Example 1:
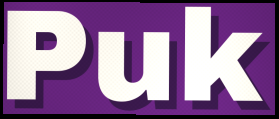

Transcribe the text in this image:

Puk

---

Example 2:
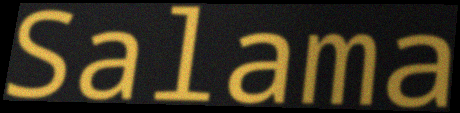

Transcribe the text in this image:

Salama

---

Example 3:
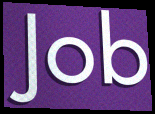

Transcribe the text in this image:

Job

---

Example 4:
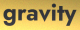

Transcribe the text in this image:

gravity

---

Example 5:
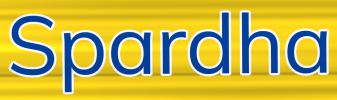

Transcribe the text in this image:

Spardha